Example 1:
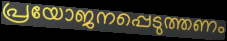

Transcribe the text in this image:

പ്രയോജനപ്പെടുത്തണം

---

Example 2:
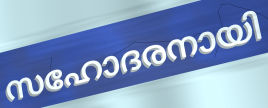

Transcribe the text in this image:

സഹോദരനായി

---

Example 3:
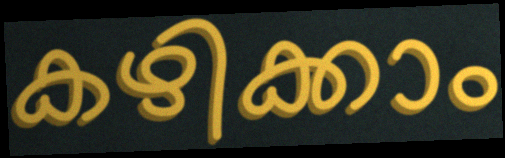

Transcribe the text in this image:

കഴിക്കാം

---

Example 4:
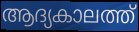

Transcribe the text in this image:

ആദ്യകാലത്ത്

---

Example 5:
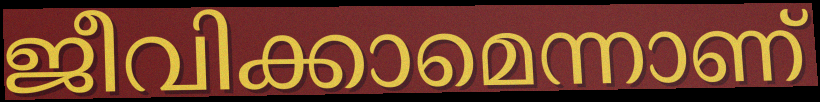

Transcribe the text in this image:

ജീവിക്കാമെന്നാണ്